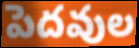
పెదవుల